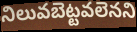
నిలువబెట్టవలెనని